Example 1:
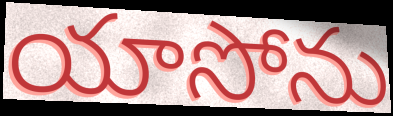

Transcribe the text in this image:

యాసోను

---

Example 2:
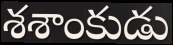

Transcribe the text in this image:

శశాంకుడు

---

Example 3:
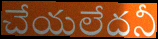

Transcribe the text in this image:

చేయలేదనీ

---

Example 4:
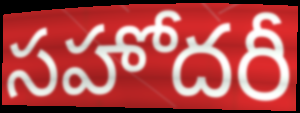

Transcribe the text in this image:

సహోదరీ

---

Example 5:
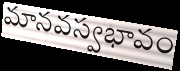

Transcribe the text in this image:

మానవస్వభావం